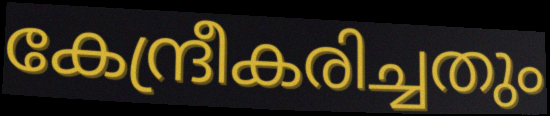
കേന്ദ്രീകരിച്ചതും